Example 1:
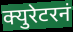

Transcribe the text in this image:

क्युरेटरनं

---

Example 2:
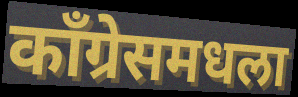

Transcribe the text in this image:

काँग्रेसमधला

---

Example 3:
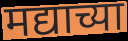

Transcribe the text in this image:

मद्याच्या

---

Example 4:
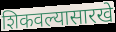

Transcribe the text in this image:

शिकवल्यासारखे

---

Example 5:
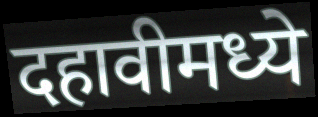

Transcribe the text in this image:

दहावीमध्ये